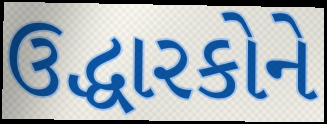
ઉદ્ધારકોને